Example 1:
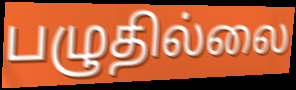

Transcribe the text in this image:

பழுதில்லை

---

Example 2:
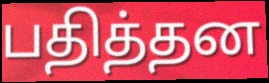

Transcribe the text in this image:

பதித்தன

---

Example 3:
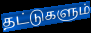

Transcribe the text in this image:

தட்டுகளும்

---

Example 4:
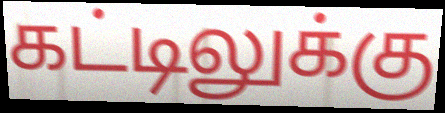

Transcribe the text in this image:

கட்டிலுக்கு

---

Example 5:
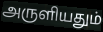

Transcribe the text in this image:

அருளியதும்